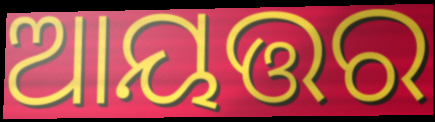
ଆୟତ୍ତର